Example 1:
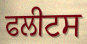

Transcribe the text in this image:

ਫਲੀਟਸ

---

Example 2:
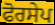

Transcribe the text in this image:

ਫੋਰਸੇਪ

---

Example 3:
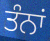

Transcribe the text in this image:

ਤੰਨਾਂ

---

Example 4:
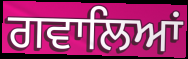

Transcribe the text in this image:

ਗਵਾਲਿਆਂ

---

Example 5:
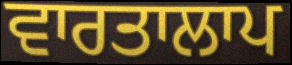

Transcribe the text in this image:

ਵਾਰਤਾਲਾਪ